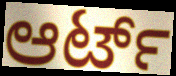
ಆರ್ಟ್